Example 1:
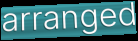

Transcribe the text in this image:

arranged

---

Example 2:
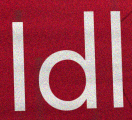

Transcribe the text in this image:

Idl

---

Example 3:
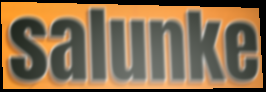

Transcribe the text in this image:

salunke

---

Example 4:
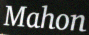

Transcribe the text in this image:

Mahon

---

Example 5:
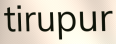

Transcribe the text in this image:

tirupur